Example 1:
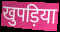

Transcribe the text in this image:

खुपड़िया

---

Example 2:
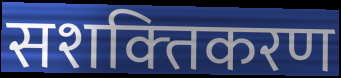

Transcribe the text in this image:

सशक्‍तिकरण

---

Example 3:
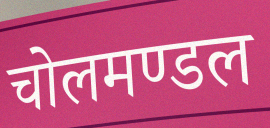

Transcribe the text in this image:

चोलमण्डल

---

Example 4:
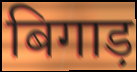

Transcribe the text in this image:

बिगाड़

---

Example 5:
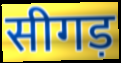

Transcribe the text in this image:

सीगड़